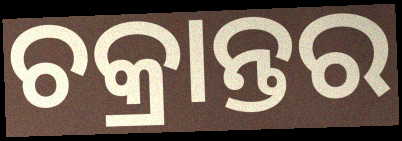
ଚକ୍ରାନ୍ତର